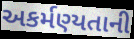
અકર્મણ્યતાની